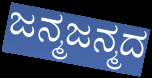
ಜನ್ಮಜನ್ಮದ